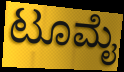
ಟೂಮೈ